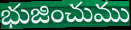
భుజించుము